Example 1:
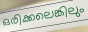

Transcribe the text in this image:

ഒരിക്കലെങ്കിലും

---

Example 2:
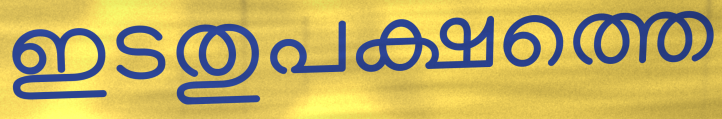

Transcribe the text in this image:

ഇടതുപക്ഷത്തെ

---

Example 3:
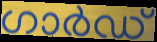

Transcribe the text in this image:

ഗാർഡ്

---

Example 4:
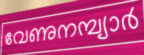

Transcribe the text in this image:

വേണുനമ്പ്യാർ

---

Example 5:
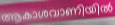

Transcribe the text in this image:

ആകാശവാണിയിൽ